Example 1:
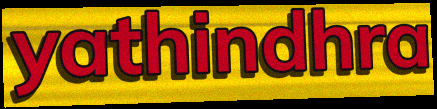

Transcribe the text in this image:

yathindhra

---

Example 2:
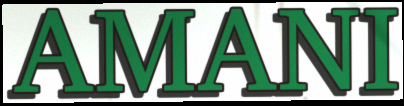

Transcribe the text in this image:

AMANI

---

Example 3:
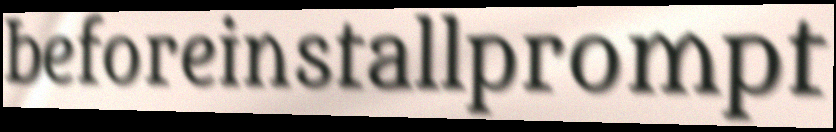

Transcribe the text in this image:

beforeinstallprompt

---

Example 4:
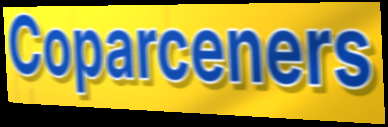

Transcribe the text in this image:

Coparceners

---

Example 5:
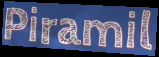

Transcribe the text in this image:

Piramil